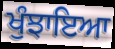
ਖੁੰਝਾਇਆ